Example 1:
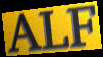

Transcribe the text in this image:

ALF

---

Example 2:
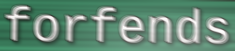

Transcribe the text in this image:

forfends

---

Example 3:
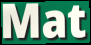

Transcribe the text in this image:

Mat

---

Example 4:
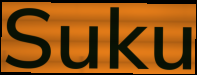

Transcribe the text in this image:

Suku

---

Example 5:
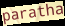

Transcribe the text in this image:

paratha